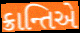
ક્રાન્તિએ